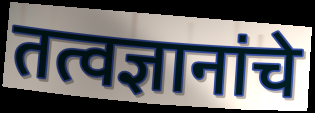
तत्वज्ञानांचे